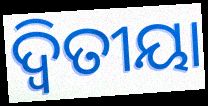
ଦ୍ୱିତୀୟା